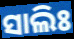
ସାଲିଃ